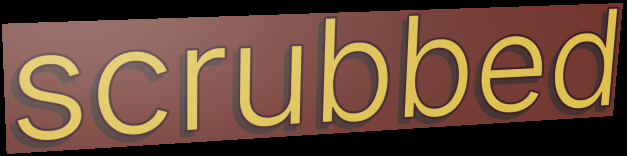
scrubbed